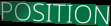
POSITION